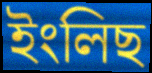
ইংলিছ